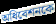
অধিবেশনকে